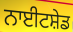
ਨਾਈਟਸ਼ੇਡ